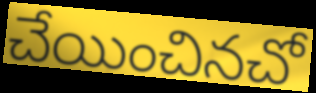
చేయించినచో